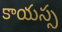
కాయస్స